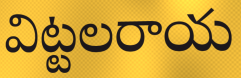
విట్టలరాయ